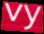
vy